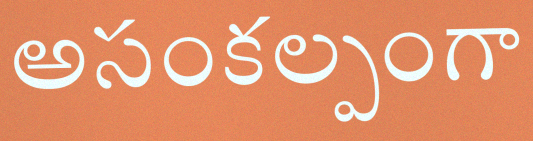
అసంకల్పంగా